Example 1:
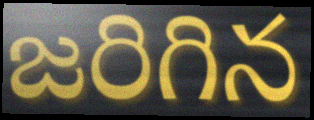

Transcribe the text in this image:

జరిగిన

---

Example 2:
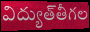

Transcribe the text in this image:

విద్యుత్‌తీగల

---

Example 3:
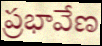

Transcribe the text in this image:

ప్రభావేణ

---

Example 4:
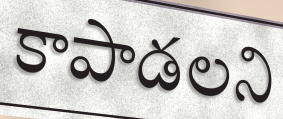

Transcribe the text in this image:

కాపాడలని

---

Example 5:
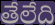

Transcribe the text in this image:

తేలేది